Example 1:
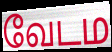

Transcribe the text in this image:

வேடம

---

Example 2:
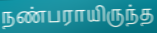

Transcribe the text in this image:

நண்பராயிருந்த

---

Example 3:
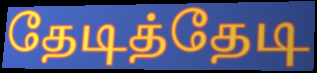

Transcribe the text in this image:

தேடித்தேடி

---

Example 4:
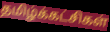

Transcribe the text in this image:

தமிழ்க்கட்சிகள்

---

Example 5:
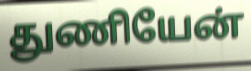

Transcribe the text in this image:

துணியேன்